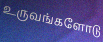
உருவங்களோடு